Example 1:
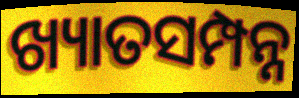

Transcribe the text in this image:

ଖ୍ୟାତସମ୍ପନ୍ନ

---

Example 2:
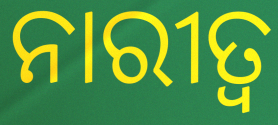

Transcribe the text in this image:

ନାରୀତ୍ୱ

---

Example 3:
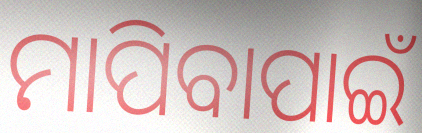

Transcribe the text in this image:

ମାପିବାପାଇଁ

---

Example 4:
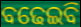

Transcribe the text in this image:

ବଢେଇବି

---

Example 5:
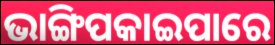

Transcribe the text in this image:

ଭାଙ୍ଗିପକାଇପାରେ